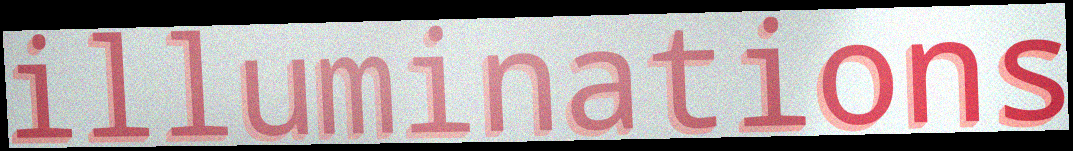
illuminations